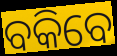
ବକିବେ